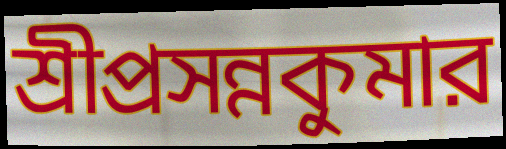
শ্রীপ্রসন্নকুমার